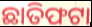
ଛାତିଫଟା